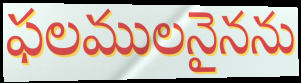
ఫలములనైనను